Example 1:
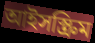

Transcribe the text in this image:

আইসস্ক্রিম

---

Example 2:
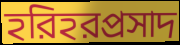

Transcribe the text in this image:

হরিহরপ্রসাদ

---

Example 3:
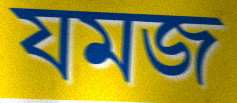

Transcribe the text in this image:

যমজ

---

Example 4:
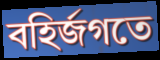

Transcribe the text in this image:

বহির্জগতে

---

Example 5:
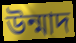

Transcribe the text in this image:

উন্মাদ